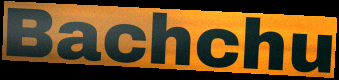
Bachchu